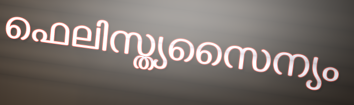
ഫെലിസ്ത്യസൈന്യം